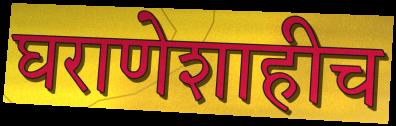
घराणेशाहीच